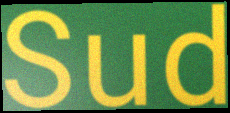
Sud